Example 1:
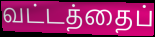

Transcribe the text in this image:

வட்டத்தைப்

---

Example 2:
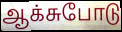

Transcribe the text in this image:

ஆக்சுபோடு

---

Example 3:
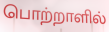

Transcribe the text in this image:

பொற்றாளில்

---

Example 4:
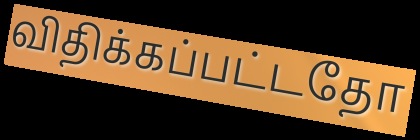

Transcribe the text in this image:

விதிக்கப்பட்டதோ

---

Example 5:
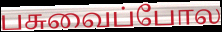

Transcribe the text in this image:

பசுவைப்போல